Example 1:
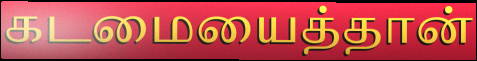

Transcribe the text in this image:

கடமையைத்தான்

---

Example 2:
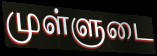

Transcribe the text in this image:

முள்ளுடை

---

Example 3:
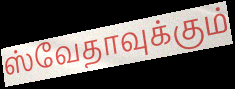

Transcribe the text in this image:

ஸ்வேதாவுக்கும்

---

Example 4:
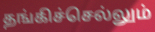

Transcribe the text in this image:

தங்கிச்செல்லும்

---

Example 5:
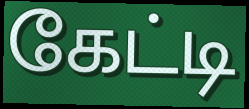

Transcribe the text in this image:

கேட்டி